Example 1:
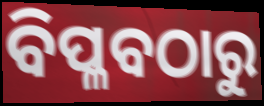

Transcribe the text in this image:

ବିପ୍ଳବଠାରୁ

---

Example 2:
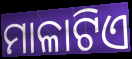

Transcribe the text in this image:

ମାଳାଟିଏ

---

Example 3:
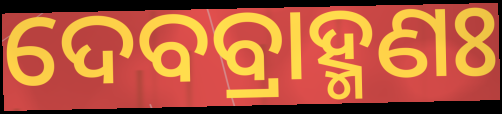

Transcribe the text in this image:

ଦେବବ୍ରାହ୍ମଣଃ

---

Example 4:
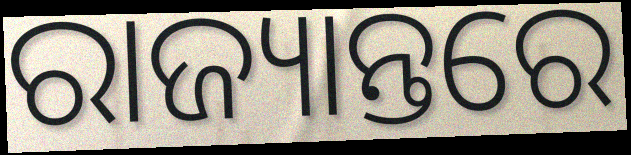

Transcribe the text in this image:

ରାଜ୍ୟାନ୍ତରେ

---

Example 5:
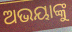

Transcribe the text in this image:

ଅଭୟାଙ୍କୁ